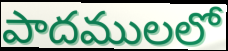
పాదములలో